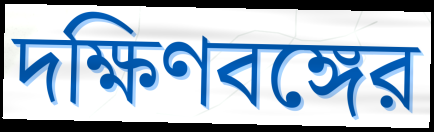
দক্ষিণবঙ্গের